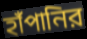
হাঁপানির